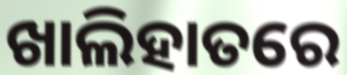
ଖାଲିହାତରେ